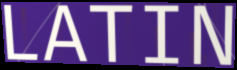
LATIN